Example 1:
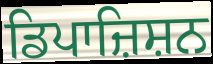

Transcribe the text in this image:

ਡਿਪਾਜ਼ਿਸ਼ਨ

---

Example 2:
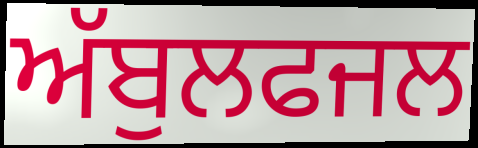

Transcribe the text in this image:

ਅੱਬੁਲਫਜਲ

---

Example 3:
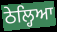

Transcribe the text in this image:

ਠੇਲ੍ਹਿਆ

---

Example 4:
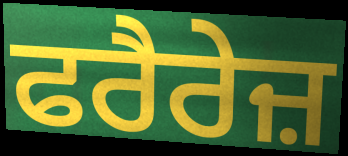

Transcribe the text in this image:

ਫਰੈਰੇਜ਼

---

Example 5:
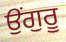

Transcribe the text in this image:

ਉਂਗੁਰੂ